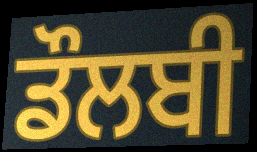
ਡੌਲਬੀ